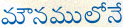
మౌనములోనే